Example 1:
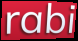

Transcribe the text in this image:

rabi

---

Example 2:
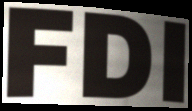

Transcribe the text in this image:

FDI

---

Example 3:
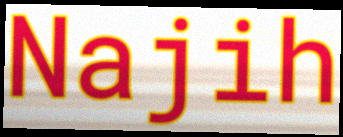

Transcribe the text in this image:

Najih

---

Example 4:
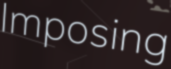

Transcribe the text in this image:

Imposing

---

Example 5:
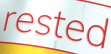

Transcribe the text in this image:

rested